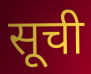
सूची